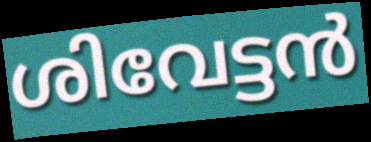
ശിവേട്ടൻ